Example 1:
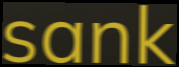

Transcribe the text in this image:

sank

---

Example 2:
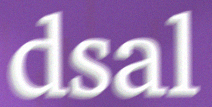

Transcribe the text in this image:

dsal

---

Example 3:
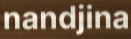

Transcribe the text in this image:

nandjina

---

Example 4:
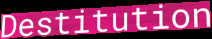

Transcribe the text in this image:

Destitution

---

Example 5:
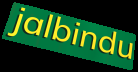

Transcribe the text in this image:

jalbindu